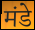
मंडे